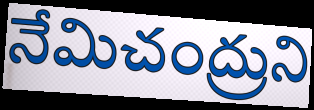
నేమిచంద్రుని